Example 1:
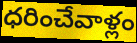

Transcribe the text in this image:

ధరించేవాళ్లం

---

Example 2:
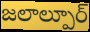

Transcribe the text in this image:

జలాల్పూర్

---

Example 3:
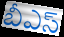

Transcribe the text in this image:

బీఎస్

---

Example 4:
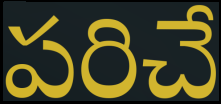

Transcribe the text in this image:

పరిచే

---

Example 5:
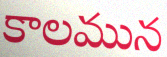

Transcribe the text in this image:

కాలమున